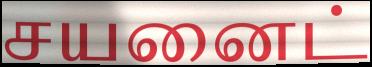
சயனைட்